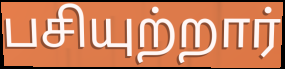
பசியுற்றார்